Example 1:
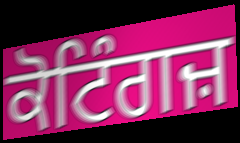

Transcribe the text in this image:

ਕੋਟਿੰਗਜ਼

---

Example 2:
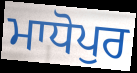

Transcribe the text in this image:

ਮਾਧੋਪੁਰ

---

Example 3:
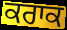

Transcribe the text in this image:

ਕਰਾਕ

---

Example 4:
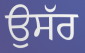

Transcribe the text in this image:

ਉਸੱਰ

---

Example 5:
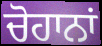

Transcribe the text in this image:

ਚੋਹਾਨਾਂ